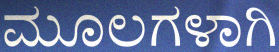
ಮೂಲಗಳಾಗಿ